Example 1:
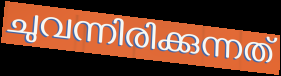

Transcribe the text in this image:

ചുവന്നിരിക്കുന്നത്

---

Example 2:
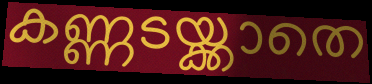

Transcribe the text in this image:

കണ്ണടയ്ക്കാതെ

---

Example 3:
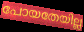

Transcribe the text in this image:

പോയതേയില്ല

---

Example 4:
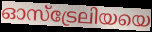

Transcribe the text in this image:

ഓസ്ട്രേലിയയെ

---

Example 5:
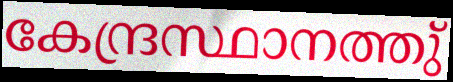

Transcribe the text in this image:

കേന്ദ്രസ്ഥാനത്തു്